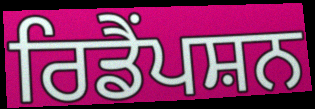
ਰਿਡੈਂਪਸ਼ਨ